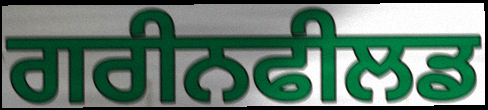
ਗਰੀਨਫੀਲਡ